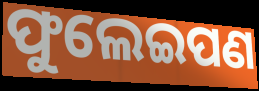
ଫୁଲେଇପଣ